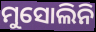
ମୁସୋଲିନି